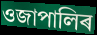
ওজাপালিৰ